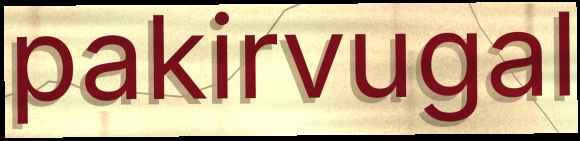
pakirvugal